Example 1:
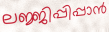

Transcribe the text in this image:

ലജ്ജിപ്പിപ്പാൻ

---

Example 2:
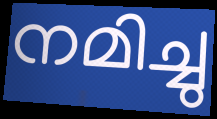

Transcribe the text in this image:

നമിച്ചു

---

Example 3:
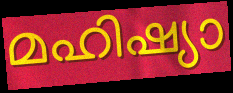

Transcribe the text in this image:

മഹിഷ്യാ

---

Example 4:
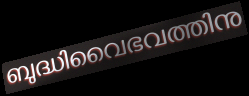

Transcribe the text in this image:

ബുദ്ധിവൈഭവത്തിനു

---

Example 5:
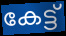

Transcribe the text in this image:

കേട്ട്